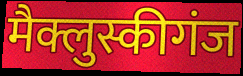
मैक्लुस्कीगंज